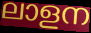
ലാളന